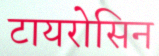
टायरोसिन